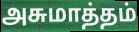
அசுமாத்தம்